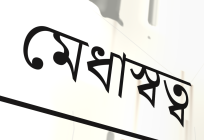
মেধাস্বত্ব